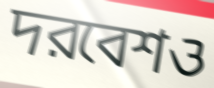
দরবেশও